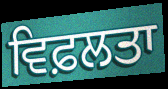
ਵਿਫ਼ਲਤਾ